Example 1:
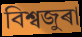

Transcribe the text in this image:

বিশ্বজুৰা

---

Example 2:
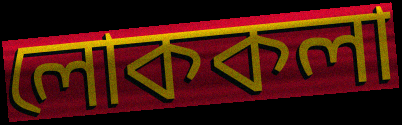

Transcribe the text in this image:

লোককলা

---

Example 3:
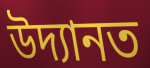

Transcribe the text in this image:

উদ্যানত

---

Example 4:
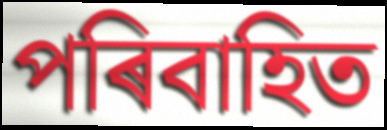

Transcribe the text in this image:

পৰিবাহিত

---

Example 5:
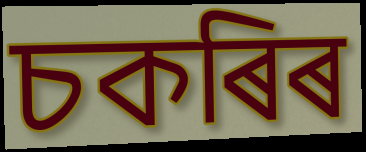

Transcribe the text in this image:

চকৰিৰ